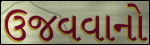
ઉજવવાનો